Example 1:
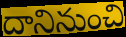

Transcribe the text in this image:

దానినుంచి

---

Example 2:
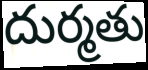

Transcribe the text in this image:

దుర్మతు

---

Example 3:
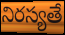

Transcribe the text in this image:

నిరస్యతే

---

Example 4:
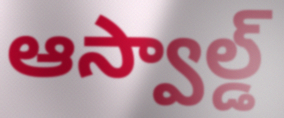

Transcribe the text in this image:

ఆస్వాల్డ్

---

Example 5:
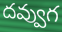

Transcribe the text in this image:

దవ్వుగ